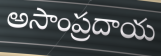
అసాంప్రదాయ